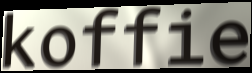
koffie